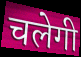
चलेगी